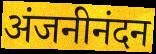
अंजनीनंदन